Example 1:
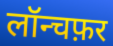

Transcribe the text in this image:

लॉन्चफ़र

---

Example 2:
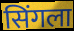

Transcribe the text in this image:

सिंगला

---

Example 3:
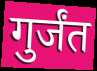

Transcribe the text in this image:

गुर्जंत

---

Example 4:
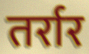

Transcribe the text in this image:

तर्रार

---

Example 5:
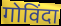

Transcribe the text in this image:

गोविंदा